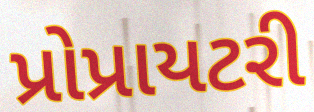
પ્રોપ્રાયટરી